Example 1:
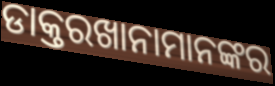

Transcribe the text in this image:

ଡାକ୍ତରଖାନାମାନଙ୍କର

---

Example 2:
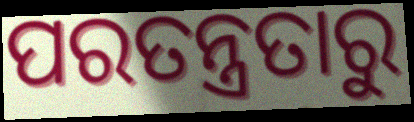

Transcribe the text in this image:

ପରତନ୍ତ୍ରତାରୁ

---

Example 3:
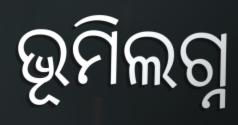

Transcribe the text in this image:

ଭୂମିଲଗ୍ନ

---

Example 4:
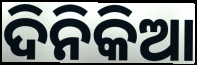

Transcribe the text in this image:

ଦିନିକିଆ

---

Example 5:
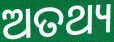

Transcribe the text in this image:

ଅତଥ୍ୟ